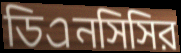
ডিএনসিসির